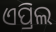
ଏପ୍ରିଲ